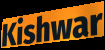
Kishwar